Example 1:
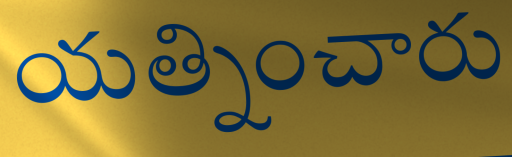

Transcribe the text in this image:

యత్నించారు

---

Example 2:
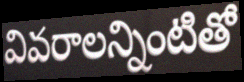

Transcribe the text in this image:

వివరాలన్నింటితో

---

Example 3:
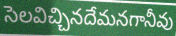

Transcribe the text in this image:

సెలవిచ్చినదేమనగానీవు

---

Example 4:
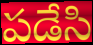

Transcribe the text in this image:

పడేసి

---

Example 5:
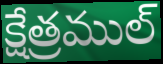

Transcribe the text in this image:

క్షేత్రముల్